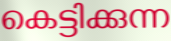
കെട്ടിക്കുന്ന